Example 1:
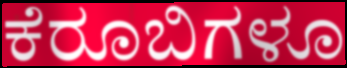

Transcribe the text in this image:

ಕೆರೂಬಿಗಳೂ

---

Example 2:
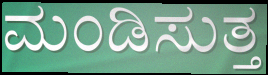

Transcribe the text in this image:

ಮಂಡಿಸುತ್ತ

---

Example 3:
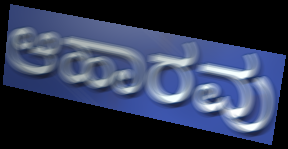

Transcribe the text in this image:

ಆಹಾರವು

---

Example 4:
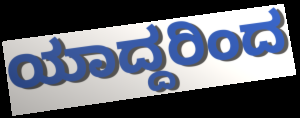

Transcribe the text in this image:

ಯಾದ್ದರಿಂದ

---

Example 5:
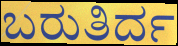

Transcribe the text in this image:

ಬರುತಿರ್ದ